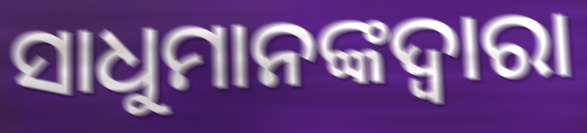
ସାଧୁମାନଙ୍କଦ୍ଵାରା